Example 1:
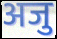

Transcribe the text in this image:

अजु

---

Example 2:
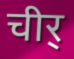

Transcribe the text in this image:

चीर्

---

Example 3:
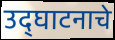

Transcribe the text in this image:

उद्‌घाटनाचे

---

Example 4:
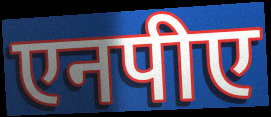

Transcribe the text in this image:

एनपीए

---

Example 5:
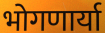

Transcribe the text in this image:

भोगणार्या